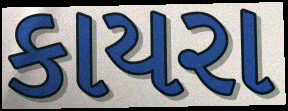
કાયરા